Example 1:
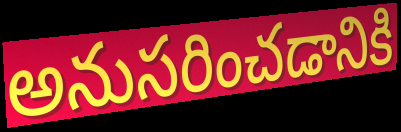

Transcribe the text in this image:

అనుసరించడానికి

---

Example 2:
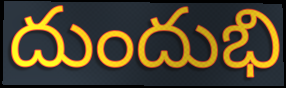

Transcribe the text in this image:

దుందుభి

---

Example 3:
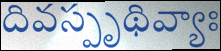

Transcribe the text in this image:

దివస్పృథివ్యాః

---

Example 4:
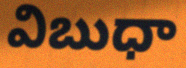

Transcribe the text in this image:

విబుధా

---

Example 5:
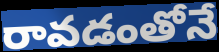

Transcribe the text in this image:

రావడంతోనే